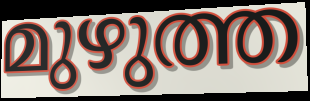
മുഴുത്ത